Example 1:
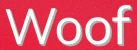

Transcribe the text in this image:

Woof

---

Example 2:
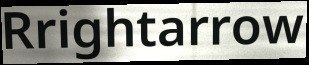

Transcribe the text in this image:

Rrightarrow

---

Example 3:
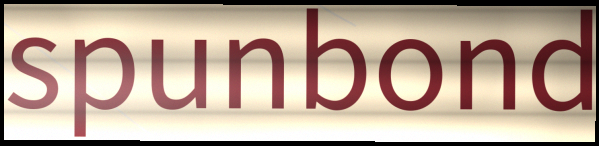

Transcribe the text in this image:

spunbond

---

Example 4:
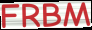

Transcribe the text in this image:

FRBM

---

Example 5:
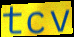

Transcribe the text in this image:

tcv